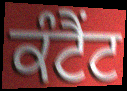
ਕੰਟੈਂਟ